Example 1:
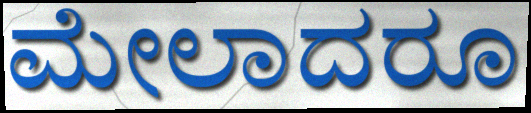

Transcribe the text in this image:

ಮೇಲಾದರೂ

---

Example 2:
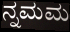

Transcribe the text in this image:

ನ್ನಮಮ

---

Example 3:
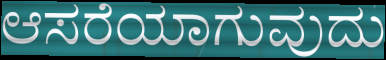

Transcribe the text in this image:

ಆಸರೆಯಾಗುವುದು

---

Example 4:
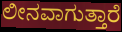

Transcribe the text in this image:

ಲೀನವಾಗುತ್ತಾರೆ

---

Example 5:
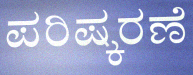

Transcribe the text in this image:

ಪರಿಷ್ಕರಣೆ